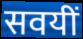
सवयीं